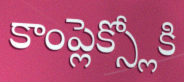
కాంప్లెక్స్లోకి